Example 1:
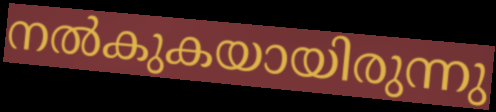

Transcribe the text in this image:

നൽകുകയായിരുന്നു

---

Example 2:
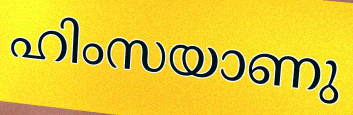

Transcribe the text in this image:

ഹിംസയാണു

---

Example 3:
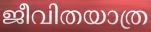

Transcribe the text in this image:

ജീവിതയാത്ര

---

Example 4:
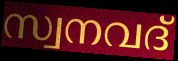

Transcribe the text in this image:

സ്വനവദ്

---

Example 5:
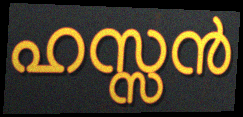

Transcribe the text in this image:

ഹസ്സൻ